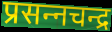
प्रसन्नचन्द्र